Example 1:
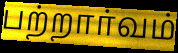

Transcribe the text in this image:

பற்றார்வம்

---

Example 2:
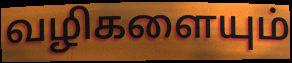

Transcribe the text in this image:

வழிகளையும்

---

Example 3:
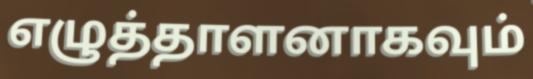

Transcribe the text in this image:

எழுத்தாளனாகவும்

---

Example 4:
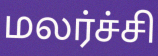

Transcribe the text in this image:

மலர்ச்சி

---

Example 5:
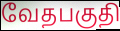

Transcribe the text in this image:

வேதபகுதி